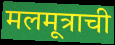
मलमूत्राची